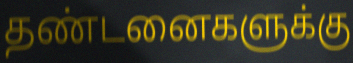
தண்டனைகளுக்கு